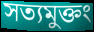
সত্যমুক্তং